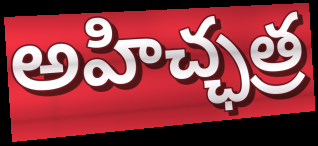
అహిచ్ఛత్ర